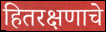
हितरक्षणाचे